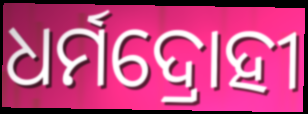
ଧର୍ମଦ୍ରୋହୀ